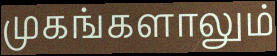
முகங்களாலும்